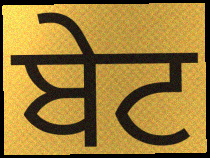
ਬੇਟ